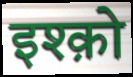
इश्क़ो